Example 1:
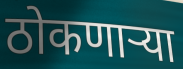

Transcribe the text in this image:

ठोकणाऱ्या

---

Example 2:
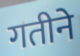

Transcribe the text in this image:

गतीने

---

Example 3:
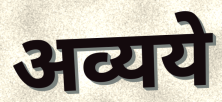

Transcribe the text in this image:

अव्यये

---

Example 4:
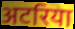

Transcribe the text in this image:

अटरिया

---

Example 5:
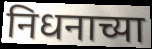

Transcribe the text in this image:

निधनाच्या